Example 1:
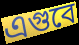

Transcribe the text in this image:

এগুবে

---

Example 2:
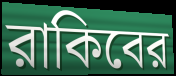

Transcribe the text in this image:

রাকিবের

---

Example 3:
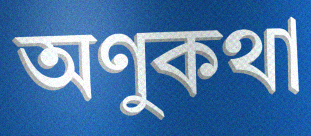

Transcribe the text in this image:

অণুকথা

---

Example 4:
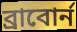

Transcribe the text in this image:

ব্রাবোর্ন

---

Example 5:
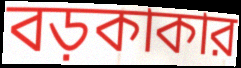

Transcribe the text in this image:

বড়কাকার